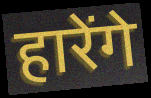
हारेंगे